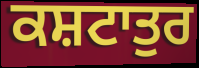
ਕਸ਼ਟਾਤੁਰ